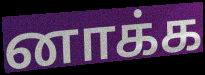
னாக்க